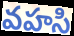
వహసి